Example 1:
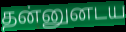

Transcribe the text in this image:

தன்னுனடய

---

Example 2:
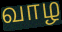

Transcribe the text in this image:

வாழ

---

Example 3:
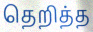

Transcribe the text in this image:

தெறித்த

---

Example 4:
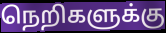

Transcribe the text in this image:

நெறிகளுக்கு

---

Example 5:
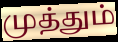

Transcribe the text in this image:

முத்தும்